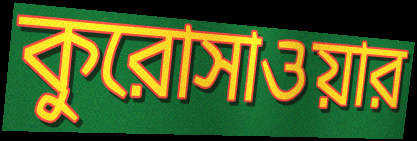
কুরোসাওয়ার